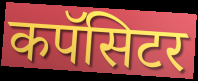
कपॅसिटर